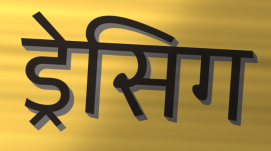
ड्रेसिग